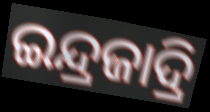
ଇନ୍ଦ୍ରଜାଦ୍ରି